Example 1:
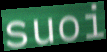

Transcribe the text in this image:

suoi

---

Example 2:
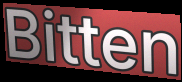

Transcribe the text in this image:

Bitten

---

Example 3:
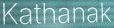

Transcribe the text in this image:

Kathanak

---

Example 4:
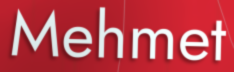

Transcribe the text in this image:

Mehmet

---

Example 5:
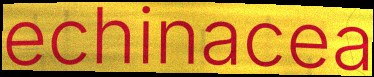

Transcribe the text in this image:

echinacea